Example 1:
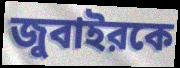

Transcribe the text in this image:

জুবাইরকে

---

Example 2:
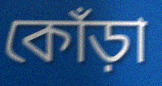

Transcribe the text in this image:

কোঁড়া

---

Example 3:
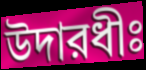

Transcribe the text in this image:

উদারধীঃ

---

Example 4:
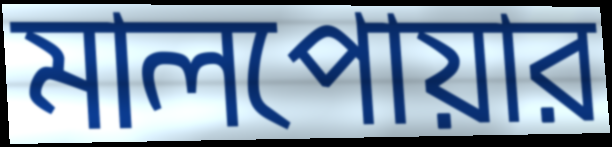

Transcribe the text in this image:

মালপোয়ার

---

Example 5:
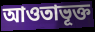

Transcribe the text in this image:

আওতাভূক্ত